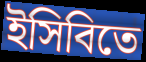
ইসিবিতে